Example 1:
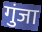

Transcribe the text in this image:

गुंजा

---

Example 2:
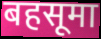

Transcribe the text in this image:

बहसूमा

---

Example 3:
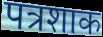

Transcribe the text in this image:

पत्रशाक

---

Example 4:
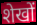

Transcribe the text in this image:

शेखों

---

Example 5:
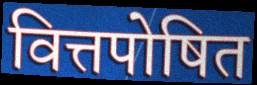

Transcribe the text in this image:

वित्तपोषित